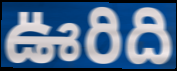
ఊరిది